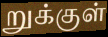
றுக்குள்